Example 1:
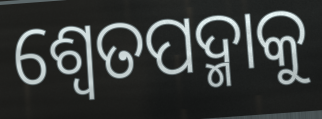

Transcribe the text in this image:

ଶ୍ୱେତପଦ୍ମାକୁ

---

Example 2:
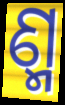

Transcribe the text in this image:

ଣ୍ମ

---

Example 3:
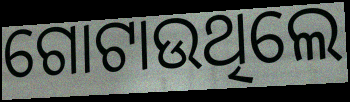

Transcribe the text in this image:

ଗୋଟାଉଥିଲେ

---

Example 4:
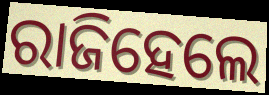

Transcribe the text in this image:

ରାଜିହେଲେ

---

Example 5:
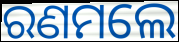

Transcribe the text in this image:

ରଣମଲେ